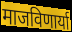
माजविणार्या